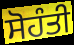
ਸੋਹੰਤੀ